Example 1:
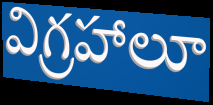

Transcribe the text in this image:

విగ్రహాలూ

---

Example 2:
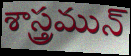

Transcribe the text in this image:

శాస్త్రమున్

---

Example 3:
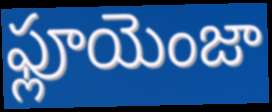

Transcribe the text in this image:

ఫ్లూయెంజా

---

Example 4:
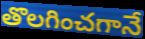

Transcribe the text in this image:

తొలగించగానే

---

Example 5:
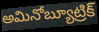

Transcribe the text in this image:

అమినోబ్యూట్రిక్